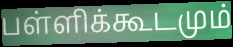
பள்ளிக்கூடமும்